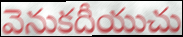
వెనుకదీయుచు